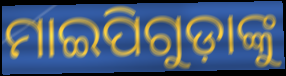
ମାଇପିଗୁଡ଼ାଙ୍କୁ